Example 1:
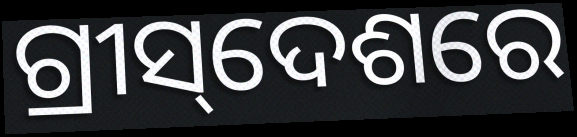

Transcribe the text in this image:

ଗ୍ରୀସ୍‌ଦେଶରେ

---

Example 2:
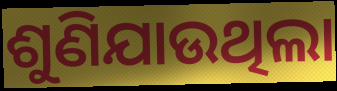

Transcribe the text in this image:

ଶୁଣିଯାଉଥିଲା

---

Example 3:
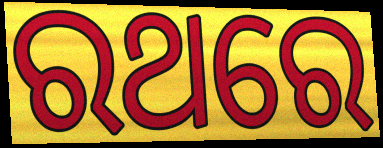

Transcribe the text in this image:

ରଥରେ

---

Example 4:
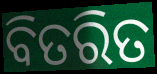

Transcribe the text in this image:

ବିତରିତ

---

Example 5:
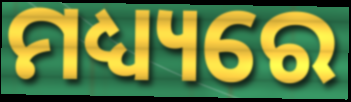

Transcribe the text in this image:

ମଧ୍ୟ୍ୟରେ